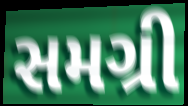
સમગ્રી